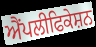
ਐਂਪਲੀਫਿਕੇਸ਼ਨ